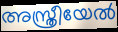
അസ്ത്രീയേൽ